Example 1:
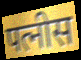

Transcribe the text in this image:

पत्‍नीस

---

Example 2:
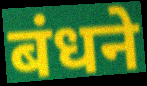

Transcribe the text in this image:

बंधने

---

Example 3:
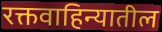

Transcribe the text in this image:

रक्तवाहिन्यातील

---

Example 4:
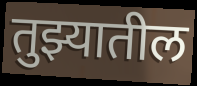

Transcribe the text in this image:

तुझ्यातील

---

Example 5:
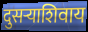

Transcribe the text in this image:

दुसऱ्याशिवाय